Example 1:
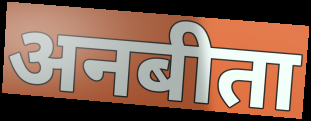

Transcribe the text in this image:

अनबीता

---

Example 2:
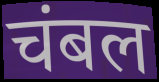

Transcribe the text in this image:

चंबल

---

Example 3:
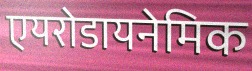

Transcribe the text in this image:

एयरोडायनेमिक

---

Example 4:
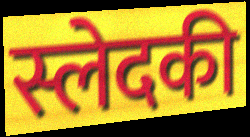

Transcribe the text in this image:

स्लेदकी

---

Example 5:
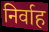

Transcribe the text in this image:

निर्वाह